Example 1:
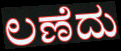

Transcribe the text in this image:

ಲಣೆದು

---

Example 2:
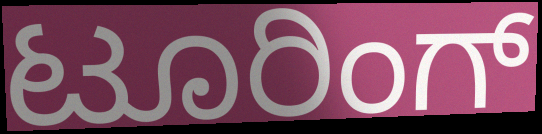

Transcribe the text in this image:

ಟೂರಿಂಗ್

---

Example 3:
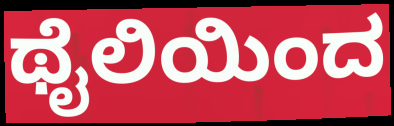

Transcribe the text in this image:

ಥೈಲಿಯಿಂದ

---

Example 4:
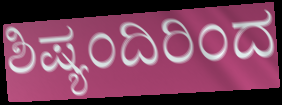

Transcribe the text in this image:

ಶಿಷ್ಯಂದಿರಿಂದ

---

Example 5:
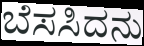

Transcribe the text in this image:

ಬೆಸಸಿದನು